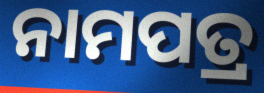
ନାମପତ୍ର